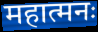
महात्मनः